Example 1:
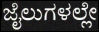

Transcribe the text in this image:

ಜೈಲುಗಳಲ್ಲೇ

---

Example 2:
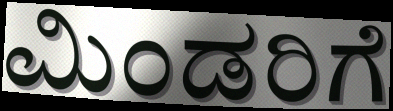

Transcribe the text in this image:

ಮಿಂಡರಿಗೆ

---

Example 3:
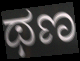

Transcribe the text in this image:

ಥಣ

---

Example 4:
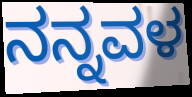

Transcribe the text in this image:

ನನ್ನವಳ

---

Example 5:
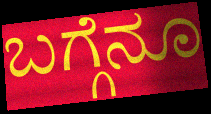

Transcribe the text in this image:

ಬಗ್ಗೆನೂ